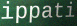
ippati